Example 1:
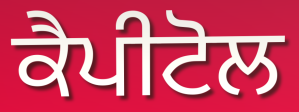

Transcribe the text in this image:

ਕੈਪੀਟੋਲ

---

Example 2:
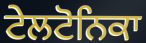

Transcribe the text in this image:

ਟੇਲਟੋਨਿਕਾ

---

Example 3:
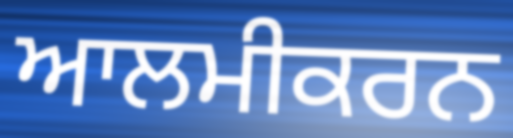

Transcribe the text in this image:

ਆਲਮੀਕਰਨ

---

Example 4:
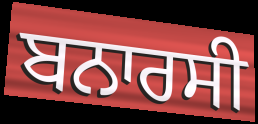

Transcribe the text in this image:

ਬਨਾਰਸੀ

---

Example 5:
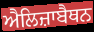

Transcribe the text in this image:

ਐਲਿਜ਼ਾਬੈਥਨ